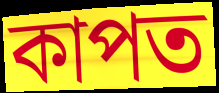
কাপত